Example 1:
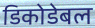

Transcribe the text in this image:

डिकोडेबल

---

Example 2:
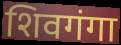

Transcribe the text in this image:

शिवगंगा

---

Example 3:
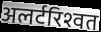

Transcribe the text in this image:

अलर्टरिश्वत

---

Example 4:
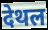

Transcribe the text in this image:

देथल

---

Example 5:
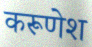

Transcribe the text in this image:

करूणेश